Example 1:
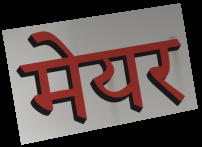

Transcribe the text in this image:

मेयर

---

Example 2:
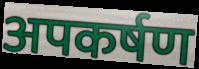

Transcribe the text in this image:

अपकर्षण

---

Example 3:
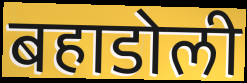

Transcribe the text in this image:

बहाडोली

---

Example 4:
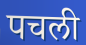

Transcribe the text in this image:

पचली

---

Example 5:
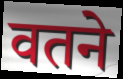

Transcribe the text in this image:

वतने